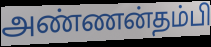
அண்ணன்தம்பி